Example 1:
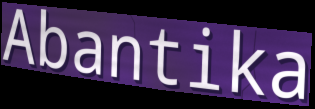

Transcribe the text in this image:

Abantika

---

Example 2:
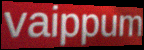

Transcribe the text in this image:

vaippum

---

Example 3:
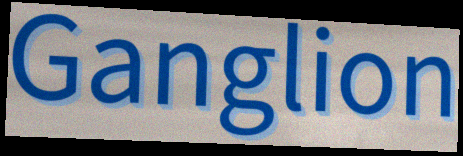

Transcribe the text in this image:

Ganglion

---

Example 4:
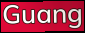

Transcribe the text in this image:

Guang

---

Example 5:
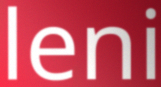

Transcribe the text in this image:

leni